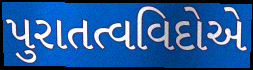
પુરાતત્વવિદોએ